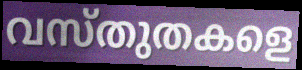
വസ്തുതകളെ